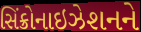
સિંક્રોનાઇઝેશનને